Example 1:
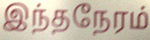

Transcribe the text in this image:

இந்தநேரம்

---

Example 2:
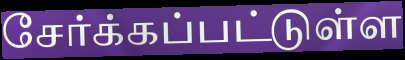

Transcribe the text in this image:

சேர்க்கப்பட்டுள்ள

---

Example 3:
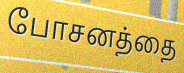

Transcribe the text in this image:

போசனத்தை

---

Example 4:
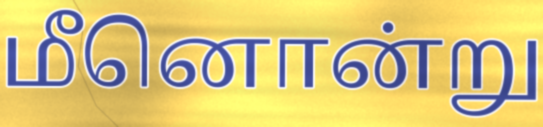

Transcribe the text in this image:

மீனொன்று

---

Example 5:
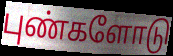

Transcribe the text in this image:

புண்களோடு